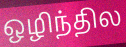
ஒழிந்தில